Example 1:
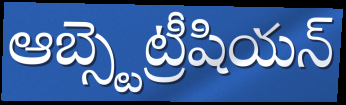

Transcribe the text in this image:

ఆబ్స్టెట్రీషియన్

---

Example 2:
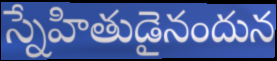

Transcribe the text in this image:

స్నేహితుడైనందున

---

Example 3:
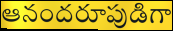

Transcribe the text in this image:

ఆనందరూపుడిగా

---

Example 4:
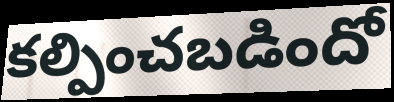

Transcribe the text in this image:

కల్పించబడిందో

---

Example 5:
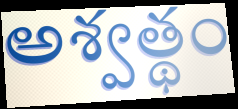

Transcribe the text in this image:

అశ్వత్థం